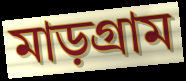
মাড়গ্রাম